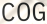
COG